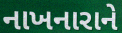
નાખનારાને